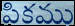
పికము